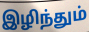
இழிந்தும்